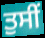
ਤੁਸੀਂ